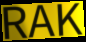
RAK